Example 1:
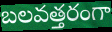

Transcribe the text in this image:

బలవత్తరంగా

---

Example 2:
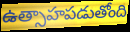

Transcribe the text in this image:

ఉత్సాహపడుతోంది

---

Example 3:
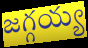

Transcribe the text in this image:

జగ్గయ్య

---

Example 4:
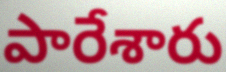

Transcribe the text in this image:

పారేశారు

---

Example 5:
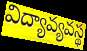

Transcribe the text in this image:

విద్యావ్యవస్థ